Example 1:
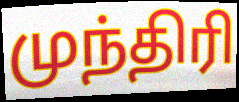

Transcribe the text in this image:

முந்திரி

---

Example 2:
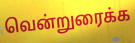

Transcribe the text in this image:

வென்றுரைக்க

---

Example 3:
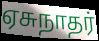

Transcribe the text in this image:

ஏசுநாதர்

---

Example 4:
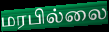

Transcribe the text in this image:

மரபில்லை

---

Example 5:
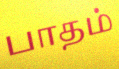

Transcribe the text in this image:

பாதம்